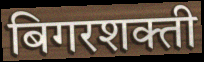
बिगरशक्ती